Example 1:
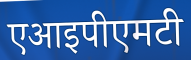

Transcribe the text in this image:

एआइपीएमटी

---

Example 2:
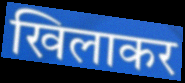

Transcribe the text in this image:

खिलाकर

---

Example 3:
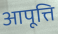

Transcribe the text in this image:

आपूत्ति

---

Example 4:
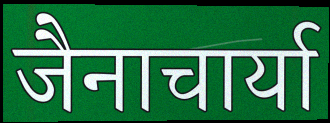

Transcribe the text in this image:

जैनाचार्या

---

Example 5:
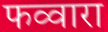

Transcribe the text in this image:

फव्वारा